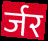
र्जर